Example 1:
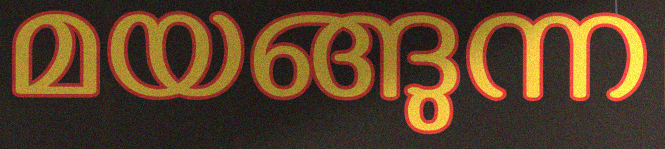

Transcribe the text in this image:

മയങ്ങുന്ന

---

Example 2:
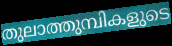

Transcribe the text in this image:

തുലാത്തുമ്പികളുടെ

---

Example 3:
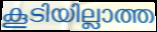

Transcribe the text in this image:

കൂടിയില്ലാത്ത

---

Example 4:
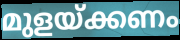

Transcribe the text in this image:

മുളയ്ക്കണം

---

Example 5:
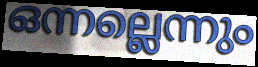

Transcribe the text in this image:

ഒന്നല്ലെന്നും